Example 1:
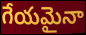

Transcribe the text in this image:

గేయమైనా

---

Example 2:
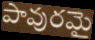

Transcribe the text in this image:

పావురమై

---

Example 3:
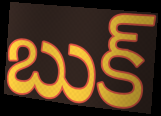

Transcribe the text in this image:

బుక్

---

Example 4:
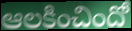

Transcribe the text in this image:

ఆలకించిందో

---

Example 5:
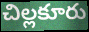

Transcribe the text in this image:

చిల్లకూరు